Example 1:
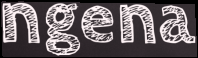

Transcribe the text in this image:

ngena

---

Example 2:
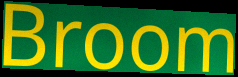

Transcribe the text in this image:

Broom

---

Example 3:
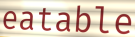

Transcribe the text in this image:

eatable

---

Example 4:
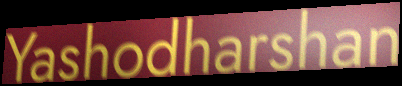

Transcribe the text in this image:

Yashodharshan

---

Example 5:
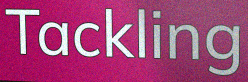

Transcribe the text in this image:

Tackling